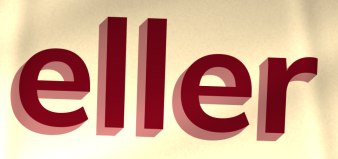
eller